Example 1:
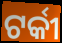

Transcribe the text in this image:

ଟର୍କୀ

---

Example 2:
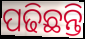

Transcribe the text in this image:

ପଢିଛନ୍ତି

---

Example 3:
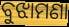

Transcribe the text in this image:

ବୁଝାମଣା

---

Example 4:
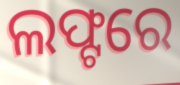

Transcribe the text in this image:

ଲଫ୍ଟରେ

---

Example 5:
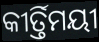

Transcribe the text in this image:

କୀର୍ତ୍ତିମୟୀ